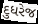
દુધરેજ